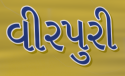
વીરપુરી